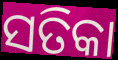
ସତିକା